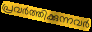
പ്രവർത്തിക്കുന്നവർ